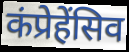
कंप्रेहेंसिव